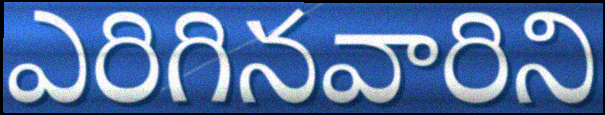
ఎరిగినవారిని